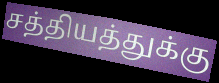
சத்தியத்துக்கு